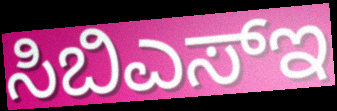
ಸಿಬಿಎಸ್ಇ